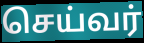
செய்வர்